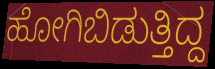
ಹೋಗಿಬಿಡುತ್ತಿದ್ದ